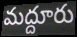
మద్దూరు